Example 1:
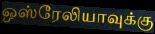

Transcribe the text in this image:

ஒஸ்ரேலியாவுக்கு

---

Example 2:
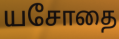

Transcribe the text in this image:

யசோதை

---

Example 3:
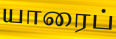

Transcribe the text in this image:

யாரைப்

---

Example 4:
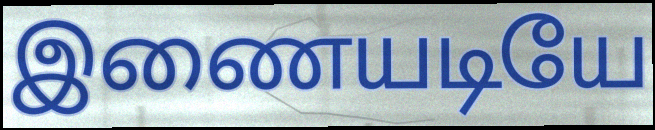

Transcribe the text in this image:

இணையடியே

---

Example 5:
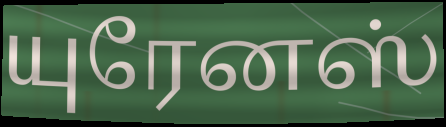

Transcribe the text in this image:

யுரேனஸ்